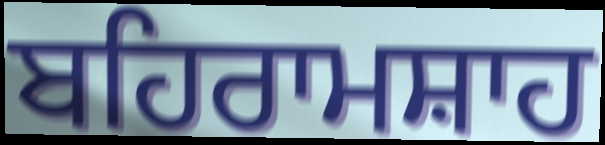
ਬਹਿਰਾਮਸ਼ਾਹ